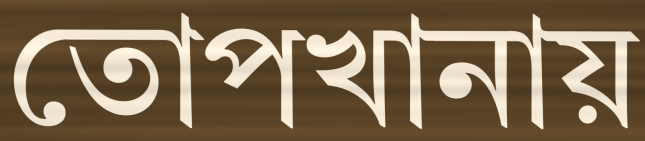
তোপখানায়